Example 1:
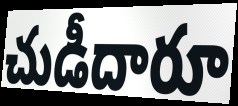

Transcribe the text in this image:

చుడీదారూ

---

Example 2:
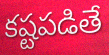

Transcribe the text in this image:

కష్టపడితే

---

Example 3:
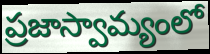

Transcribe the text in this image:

ప్రజాస్వామ్యంలో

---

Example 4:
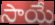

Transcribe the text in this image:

సాయే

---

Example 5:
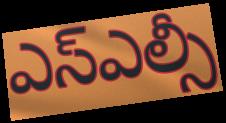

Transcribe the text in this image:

ఎస్ఎల్సీ